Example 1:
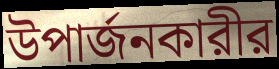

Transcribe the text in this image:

উপার্জনকারীর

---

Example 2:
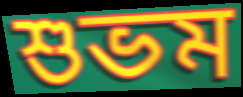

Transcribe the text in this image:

শুভম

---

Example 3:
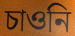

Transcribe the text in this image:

চাওনি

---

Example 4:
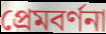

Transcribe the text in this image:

প্রেমবর্ণনা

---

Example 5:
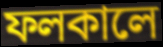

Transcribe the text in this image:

ফলকালে